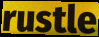
rustle